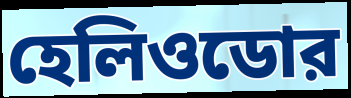
হেলিওডোর